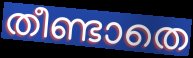
തീണ്ടാതെ